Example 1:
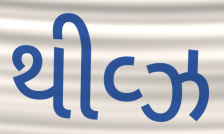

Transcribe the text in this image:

થીવ્ઝ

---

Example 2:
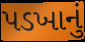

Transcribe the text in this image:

પડખાનું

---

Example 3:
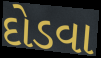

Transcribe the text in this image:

દોડવા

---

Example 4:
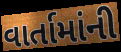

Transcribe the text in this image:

વાર્તામાંની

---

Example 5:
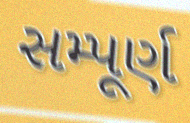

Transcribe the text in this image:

સમ્પૂર્ણ